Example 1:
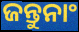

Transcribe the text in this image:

ଜନ୍ତୁନାଂ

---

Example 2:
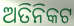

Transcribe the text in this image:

ଅତିନିକଟ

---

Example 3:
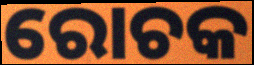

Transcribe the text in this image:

ରୋଚକ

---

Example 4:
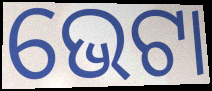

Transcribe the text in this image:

ଭେଟା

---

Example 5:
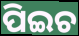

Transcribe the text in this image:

ପିଇଚ